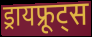
ड्रायफ्रूट्स